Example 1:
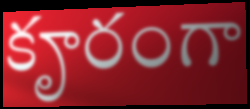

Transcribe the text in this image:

కౄరంగా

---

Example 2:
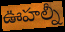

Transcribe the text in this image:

ఊహల్నీ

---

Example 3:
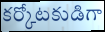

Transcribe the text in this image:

కర్కోటకుడిగా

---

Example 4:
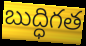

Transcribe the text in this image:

బుద్ధిగత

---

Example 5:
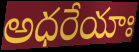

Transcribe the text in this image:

అధరేయాః